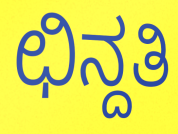
ಛಿನ್ದತಿ